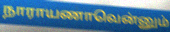
நாராயணாவென்னும்